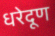
धरेदूण